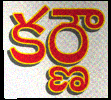
కర్ణౌ